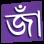
জাঁ